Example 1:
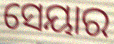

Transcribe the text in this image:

ସେୟାର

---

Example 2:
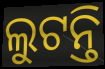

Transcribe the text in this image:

ଲୁଟନ୍ତି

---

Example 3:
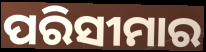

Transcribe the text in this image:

ପରିସୀମାର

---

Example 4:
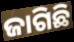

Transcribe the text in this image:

ଜାଗିଛି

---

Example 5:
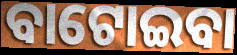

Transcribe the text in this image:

ବାଟୋଇବା